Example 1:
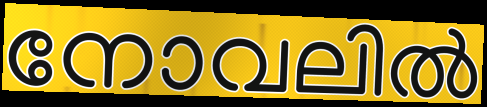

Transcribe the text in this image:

നോവലിൽ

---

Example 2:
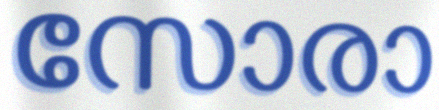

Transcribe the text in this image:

സോരാ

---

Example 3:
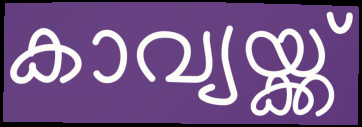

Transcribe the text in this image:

കാവ്യയ്ക്ക്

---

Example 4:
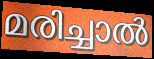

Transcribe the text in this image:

മരിച്ചാൽ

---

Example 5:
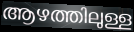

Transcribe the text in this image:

ആഴത്തിലുള്ള